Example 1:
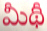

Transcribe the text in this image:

మీథీ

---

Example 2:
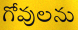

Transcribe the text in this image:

గోవులను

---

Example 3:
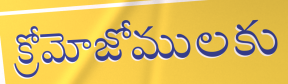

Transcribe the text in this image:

క్రోమోజోములకు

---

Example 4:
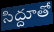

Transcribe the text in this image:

సిద్దూతో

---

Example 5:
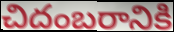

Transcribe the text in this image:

చిదంబరానికి